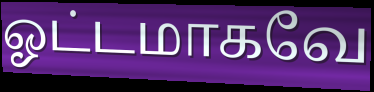
ஓட்டமாகவே